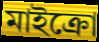
মাইক্রো